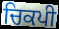
ਚਿਕਪੀ